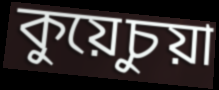
কুয়েচুয়া